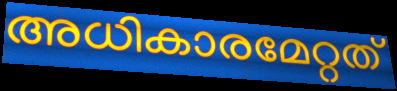
അധികാരമേറ്റത്